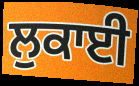
ਲੁਕਾਈ